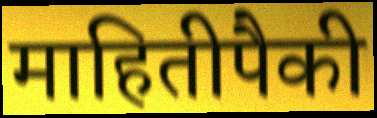
माहितीपैकी